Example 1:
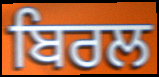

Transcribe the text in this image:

ਬਿਰਲ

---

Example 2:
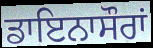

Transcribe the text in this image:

ਡਾਇਨਾਸੌਰਾਂ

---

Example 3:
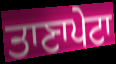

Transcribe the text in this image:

ਤਾਣਾਪੇਟਾ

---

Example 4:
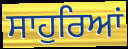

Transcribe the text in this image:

ਸਾਹੁਰਿਆਂ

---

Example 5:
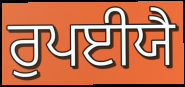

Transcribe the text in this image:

ਰੁਪਈਯੈ